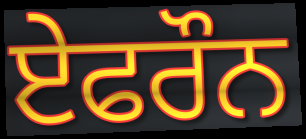
ਏਫਰੌਨ